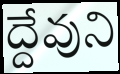
ద్దేవుని